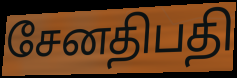
சேனதிபதி